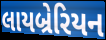
લાયબ્રેરિયન